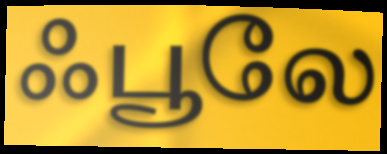
ஃபூலே